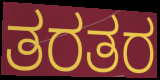
ತರತರ